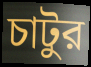
চাটুর